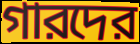
গারদের